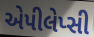
એપીલેપ્સી